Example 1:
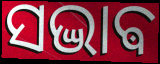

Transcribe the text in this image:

ସଦ୍ଭାଵ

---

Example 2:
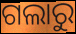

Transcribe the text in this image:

ଗଲାରୁ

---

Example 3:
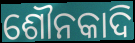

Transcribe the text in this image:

ଶୌନକାଦି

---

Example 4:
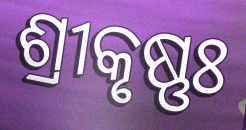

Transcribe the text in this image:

ଶ୍ରୀକୃଷ୍ଣଃ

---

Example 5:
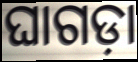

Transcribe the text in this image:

ଘାଗଡ଼ା